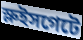
স্লুইসগেটে